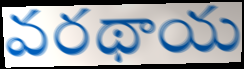
వరథాయ